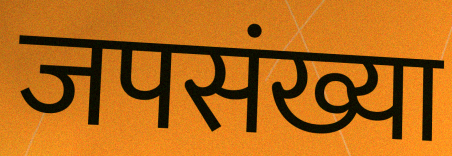
जपसंख्या